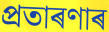
প্ৰতাৰণাৰ